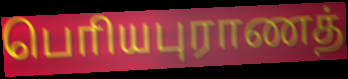
பெரியபுராணத்